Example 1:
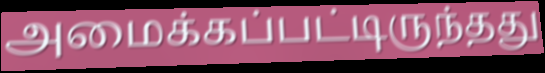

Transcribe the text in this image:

அமைக்கப்பட்டிருந்தது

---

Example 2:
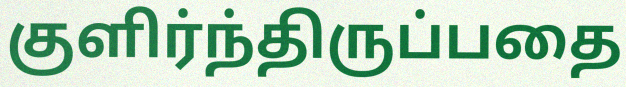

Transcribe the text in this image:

குளிர்ந்திருப்பதை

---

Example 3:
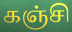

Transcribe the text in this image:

கஞ்சி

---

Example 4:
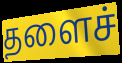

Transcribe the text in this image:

தளைச்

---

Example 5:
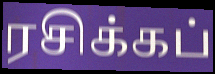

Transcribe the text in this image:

ரசிக்கப்